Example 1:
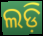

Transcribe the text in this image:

ଲଡ଼ି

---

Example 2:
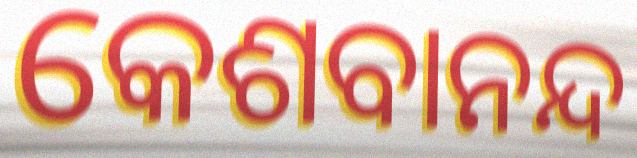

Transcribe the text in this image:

କେଶବାନନ୍ଦ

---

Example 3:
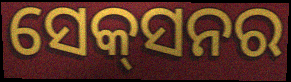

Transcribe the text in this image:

ସେକ୍‍ସନର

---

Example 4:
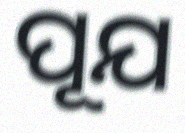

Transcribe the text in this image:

ପୂଯ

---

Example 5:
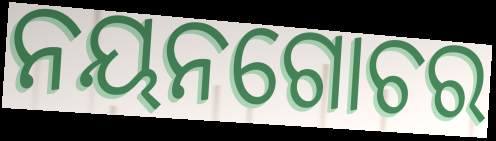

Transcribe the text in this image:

ନୟନଗୋଚର